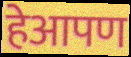
हेआपण